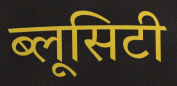
ब्लूसिटी